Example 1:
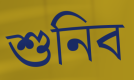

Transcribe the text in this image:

শুনিব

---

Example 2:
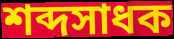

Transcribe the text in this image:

শব্দসাধক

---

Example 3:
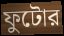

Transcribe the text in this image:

ফুটোর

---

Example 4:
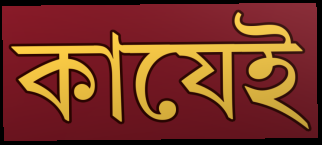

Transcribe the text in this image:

কাযেই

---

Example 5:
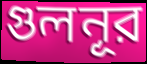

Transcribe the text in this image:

গুলনূর